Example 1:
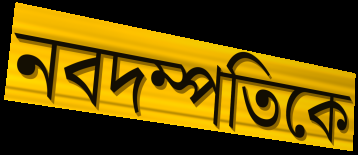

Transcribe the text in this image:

নবদম্পতিকে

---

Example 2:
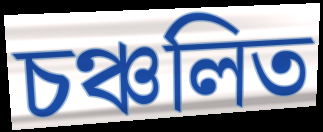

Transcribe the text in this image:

চঞ্চলিত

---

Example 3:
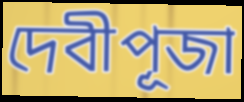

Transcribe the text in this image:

দেবীপূজা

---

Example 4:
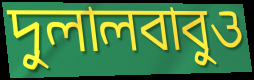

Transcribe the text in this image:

দুলালবাবুও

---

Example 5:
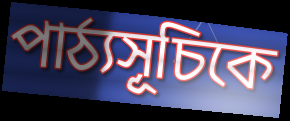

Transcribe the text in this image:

পাঠ্যসূচিকে